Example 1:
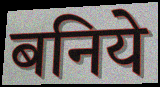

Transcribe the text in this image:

बनिये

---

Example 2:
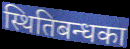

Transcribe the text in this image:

स्थितिबन्धका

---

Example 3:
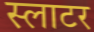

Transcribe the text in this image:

स्लाटर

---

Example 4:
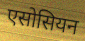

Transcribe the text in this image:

एसोसियन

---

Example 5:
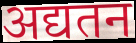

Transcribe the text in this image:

अद्यतन